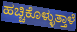
ಹಚ್ಚಿಕೊಳ್ಳುತ್ತಾಳೆ